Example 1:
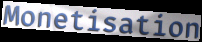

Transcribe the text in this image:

Monetisation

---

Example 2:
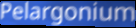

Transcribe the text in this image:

Pelargonium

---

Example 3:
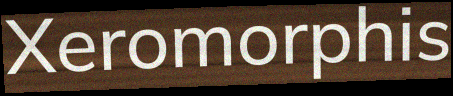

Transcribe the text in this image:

Xeromorphis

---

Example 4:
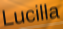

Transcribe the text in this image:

Lucilla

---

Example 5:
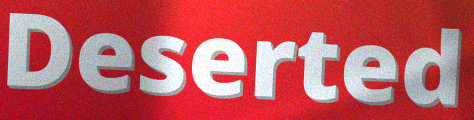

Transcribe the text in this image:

Deserted